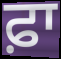
ਫ਼ਾ